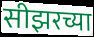
सीझरच्या